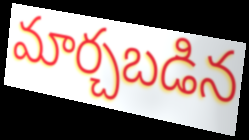
మార్చబడిన